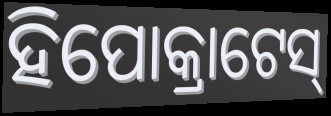
ହିପୋକ୍ରାଟେସ୍